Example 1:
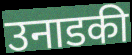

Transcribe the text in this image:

उनाडकी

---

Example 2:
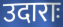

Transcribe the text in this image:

उदाराः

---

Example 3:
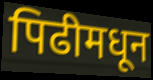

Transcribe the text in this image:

पिढीमधून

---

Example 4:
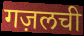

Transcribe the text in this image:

गज़लची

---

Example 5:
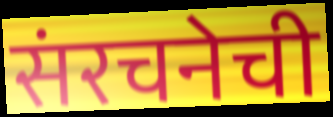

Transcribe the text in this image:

संरचनेची